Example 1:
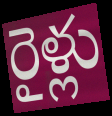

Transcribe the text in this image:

రైళ్లు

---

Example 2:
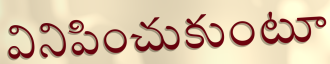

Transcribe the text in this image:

వినిపించుకుంటూ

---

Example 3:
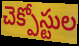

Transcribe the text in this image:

చెక్పోస్టుల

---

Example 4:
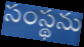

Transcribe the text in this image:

సంస్థను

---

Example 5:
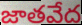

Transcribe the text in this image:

జాతవేద